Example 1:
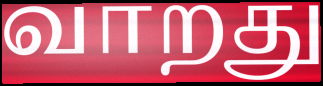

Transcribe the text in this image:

வாறது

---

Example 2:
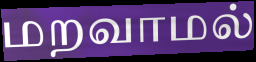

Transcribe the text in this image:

மறவாமல்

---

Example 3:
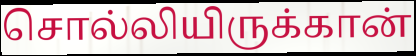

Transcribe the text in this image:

சொல்லியிருக்கான்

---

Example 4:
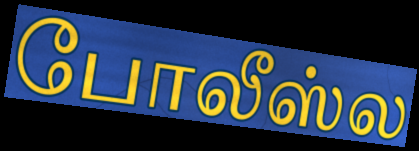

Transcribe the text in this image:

போலீஸ்ல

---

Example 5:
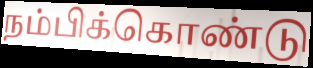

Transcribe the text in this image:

நம்பிக்கொண்டு